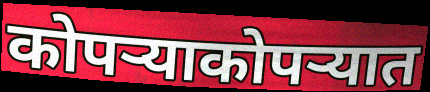
कोपऱ्याकोपऱ्यात